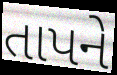
તાપને